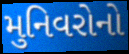
મુનિવરોનો